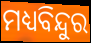
ମଧ୍ୟବିନ୍ଦୁର